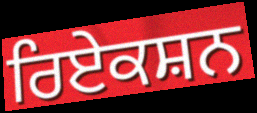
ਰਿਏਕਸ਼ਨ